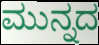
ಮುನ್ನದ